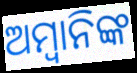
ଅମ୍ବାନିଙ୍କ